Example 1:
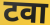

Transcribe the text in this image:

टवा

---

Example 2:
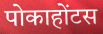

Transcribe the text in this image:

पोकाहोंटस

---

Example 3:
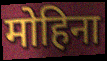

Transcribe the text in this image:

मोहिना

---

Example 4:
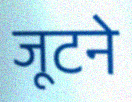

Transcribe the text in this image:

जूटने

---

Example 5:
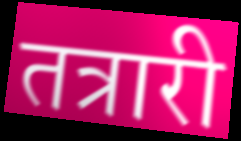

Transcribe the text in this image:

तत्रारी